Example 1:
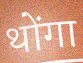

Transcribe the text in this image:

थोंगा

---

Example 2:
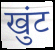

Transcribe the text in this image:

खुंट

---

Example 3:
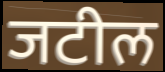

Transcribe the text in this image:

जटील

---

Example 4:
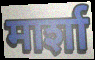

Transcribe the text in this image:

मार्शा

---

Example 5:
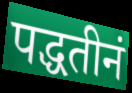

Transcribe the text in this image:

पद्धतीनं